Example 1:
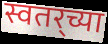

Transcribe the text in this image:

स्वतर्‍च्या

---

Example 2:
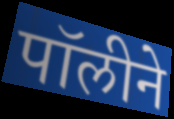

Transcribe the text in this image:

पॉलीने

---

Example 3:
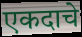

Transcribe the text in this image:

एकदाचे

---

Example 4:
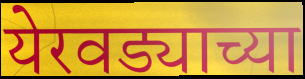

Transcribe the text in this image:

येरवड्याच्या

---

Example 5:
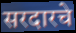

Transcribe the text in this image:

सरदारचे